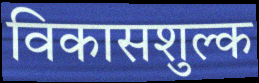
विकासशुल्क